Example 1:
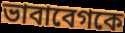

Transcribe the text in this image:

ভাবাবেগকে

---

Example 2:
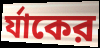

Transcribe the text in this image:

র্যাকের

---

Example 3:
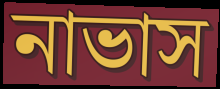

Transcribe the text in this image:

নাভাস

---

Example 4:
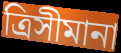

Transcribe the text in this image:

ত্রিসীমানা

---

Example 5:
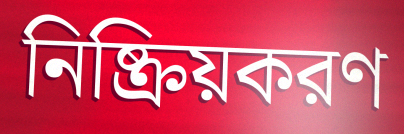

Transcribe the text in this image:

নিষ্ক্রিয়করণ